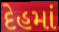
દેહમાં